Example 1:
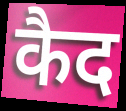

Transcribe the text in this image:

कैद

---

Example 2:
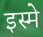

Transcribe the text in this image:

इस्मे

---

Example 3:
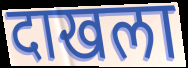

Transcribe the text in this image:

दाखला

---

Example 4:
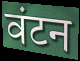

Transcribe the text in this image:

वंटन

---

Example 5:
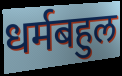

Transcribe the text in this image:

धर्मबहुल